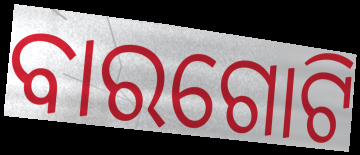
ବାରଗୋଟି